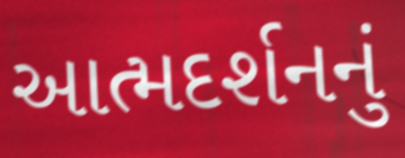
આત્મદર્શનનું